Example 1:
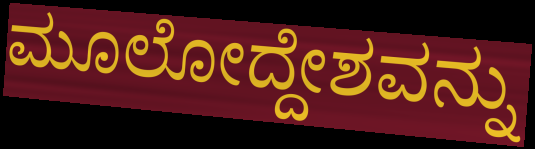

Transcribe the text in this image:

ಮೂಲೋದ್ದೇಶವನ್ನು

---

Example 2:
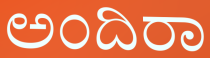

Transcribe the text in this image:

ಅಂದಿರಾ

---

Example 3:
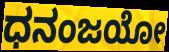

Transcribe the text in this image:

ಧನಂಜಯೋ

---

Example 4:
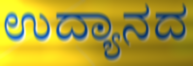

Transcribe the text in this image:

ಉದ್ಯಾನದ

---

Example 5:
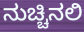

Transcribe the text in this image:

ನುಚ್ಚಿನಲಿ